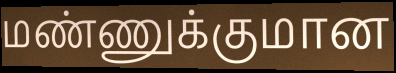
மண்ணுக்குமான